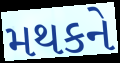
મથકને